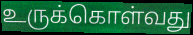
உருக்கொள்வது